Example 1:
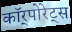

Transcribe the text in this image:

कॉर्पोरेट्स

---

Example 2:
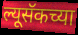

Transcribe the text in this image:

ल्यूसॅकच्या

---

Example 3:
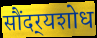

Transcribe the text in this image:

सौंदर्यशोध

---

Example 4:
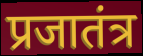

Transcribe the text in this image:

प्रजातंत्र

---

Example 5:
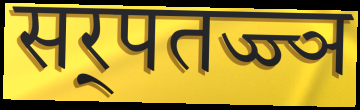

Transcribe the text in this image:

सर्पतज्ज्ञ